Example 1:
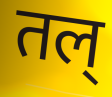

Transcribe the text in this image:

तल्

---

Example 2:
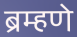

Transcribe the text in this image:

ब्रम्हणे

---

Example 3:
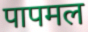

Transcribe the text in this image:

पापमल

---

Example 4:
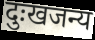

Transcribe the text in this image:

दुःखजन्य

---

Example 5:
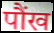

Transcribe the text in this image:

पौंख